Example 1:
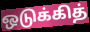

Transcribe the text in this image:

ஒடுக்கித்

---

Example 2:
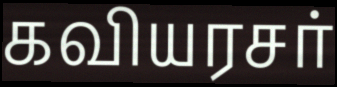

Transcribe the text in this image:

கவியரசர்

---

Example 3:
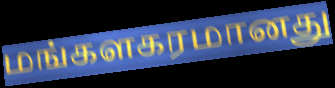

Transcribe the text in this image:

மங்களகரமானது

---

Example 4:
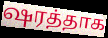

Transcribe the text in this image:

ஷரத்தாக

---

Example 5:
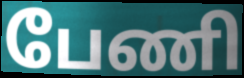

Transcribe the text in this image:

பேணி